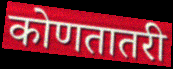
कोणतातरी